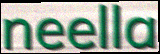
neella